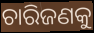
ଚାରିଜଣକୁ